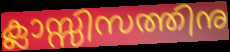
ക്ലാസ്സിസത്തിനു